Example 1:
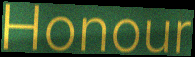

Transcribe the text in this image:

Honour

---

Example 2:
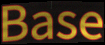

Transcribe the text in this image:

Base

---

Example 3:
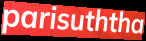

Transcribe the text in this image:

parisuththa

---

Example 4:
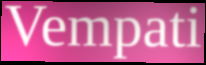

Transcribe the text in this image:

Vempati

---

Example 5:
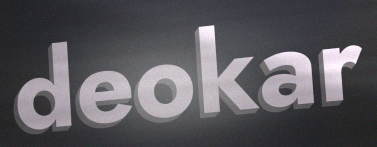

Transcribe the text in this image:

deokar